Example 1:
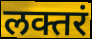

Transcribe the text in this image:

लक्तरं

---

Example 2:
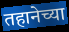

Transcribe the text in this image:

तहानेच्या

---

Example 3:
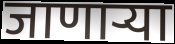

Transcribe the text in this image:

जाणार्‍या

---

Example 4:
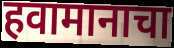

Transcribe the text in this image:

हवामानाचा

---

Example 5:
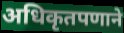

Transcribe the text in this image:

अधिकृतपणाने